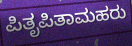
ಪಿತೃಪಿತಾಮಹರು